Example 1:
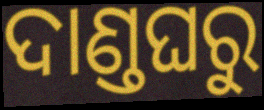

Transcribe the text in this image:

ଦାଣ୍ଡଘରୁ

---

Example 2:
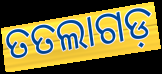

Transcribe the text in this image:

ତତଲାଗଡ଼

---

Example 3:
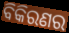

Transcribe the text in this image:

ବିକିରଣର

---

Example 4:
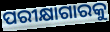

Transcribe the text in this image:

ପରୀକ୍ଷାଗାରକୁ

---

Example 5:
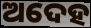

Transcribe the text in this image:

ଅଦେହ